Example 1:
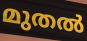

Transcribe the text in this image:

മുതൽ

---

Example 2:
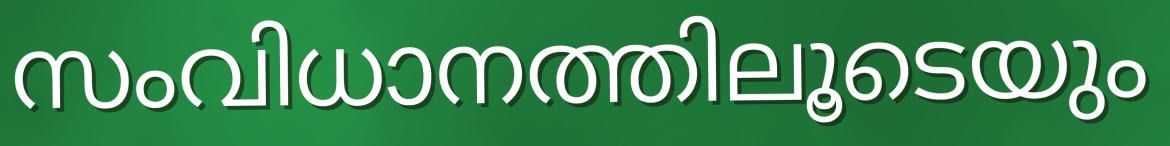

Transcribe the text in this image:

സംവിധാനത്തിലൂടെയും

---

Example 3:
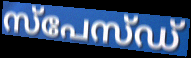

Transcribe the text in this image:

സ്പേസ്ഡ്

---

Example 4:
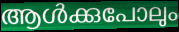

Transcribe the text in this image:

ആൾക്കുപോലും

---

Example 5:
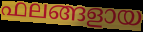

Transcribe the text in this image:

ഫലങ്ങളായ